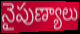
నైపుణ్యాలు